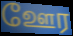
ஊேர